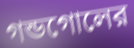
গন্ডগোলের